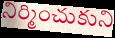
నిర్మించుకుని